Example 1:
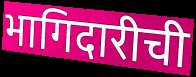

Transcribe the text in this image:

भागिदारीची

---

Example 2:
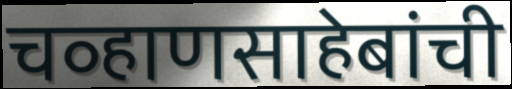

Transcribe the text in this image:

चव्हाणसाहेबांची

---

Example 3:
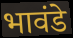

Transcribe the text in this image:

भावंडे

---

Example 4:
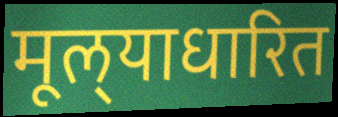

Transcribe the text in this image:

मूल्याधारित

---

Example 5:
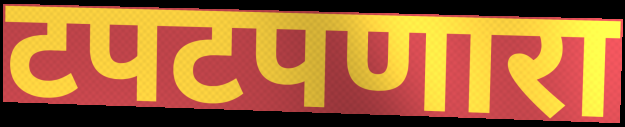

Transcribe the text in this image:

टपटपणारा